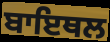
ਬਾਇਥਲ